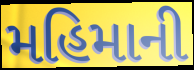
મહિમાની